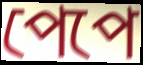
পেপে